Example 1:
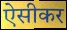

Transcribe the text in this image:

ऐसीकर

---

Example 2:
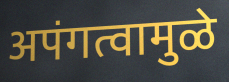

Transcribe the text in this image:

अपंगत्वामुळे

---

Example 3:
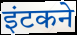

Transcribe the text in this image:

इंटकने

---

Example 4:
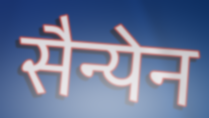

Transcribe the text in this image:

सैन्येन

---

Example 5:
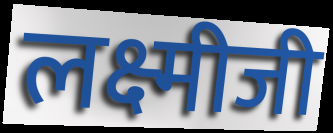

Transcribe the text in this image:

लक्ष्मीजी